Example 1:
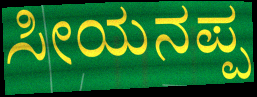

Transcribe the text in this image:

ಸೀಯನಪ್ಪ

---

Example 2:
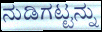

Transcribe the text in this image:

ನುಡಿಗಟ್ಟನ್ನು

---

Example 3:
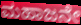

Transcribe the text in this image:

ಮಹಾಜನೇ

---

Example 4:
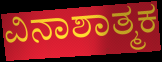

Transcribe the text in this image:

ವಿನಾಶಾತ್ಮಕ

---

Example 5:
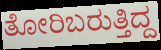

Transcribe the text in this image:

ತೋರಿಬರುತ್ತಿದ್ದ